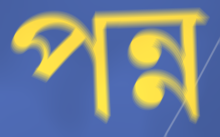
পন্ন